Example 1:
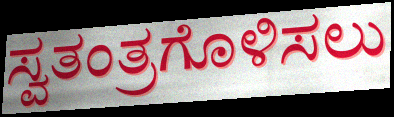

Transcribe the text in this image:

ಸ್ವತಂತ್ರಗೊಳಿಸಲು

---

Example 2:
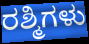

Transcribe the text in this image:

ರಶ್ಮಿಗಳು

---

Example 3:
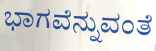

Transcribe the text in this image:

ಭಾಗವೆನ್ನುವಂತೆ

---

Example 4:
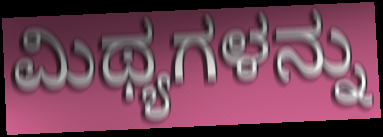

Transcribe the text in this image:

ಮಿಥ್ಯಗಳನ್ನು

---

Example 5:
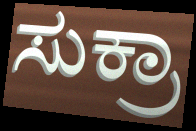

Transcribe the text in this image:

ಸುಕ್ರಾ